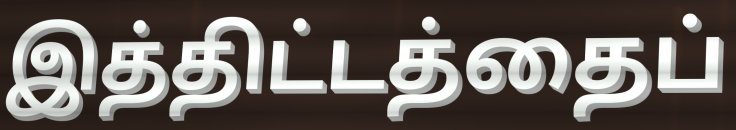
இத்திட்டத்தைப்